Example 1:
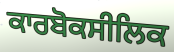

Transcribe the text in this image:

ਕਾਰਬੋਕਸੀਲਿਕ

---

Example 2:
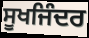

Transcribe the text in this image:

ਸੂਖਜਿੰਦਰ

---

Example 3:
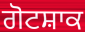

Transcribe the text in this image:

ਗੋਟਸ਼ਾਕ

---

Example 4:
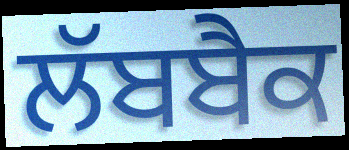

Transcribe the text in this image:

ਲੱਬਬੈਕ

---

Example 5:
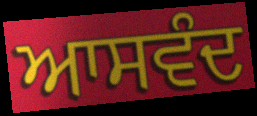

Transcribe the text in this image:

ਆਸਵੰਦ